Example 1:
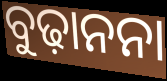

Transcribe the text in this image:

ବୁଢ଼ାନନା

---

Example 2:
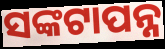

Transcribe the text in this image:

ସଙ୍କଟାପନ୍ନ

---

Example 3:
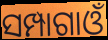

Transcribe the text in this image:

ସମ୍ପାଗାଓଁ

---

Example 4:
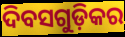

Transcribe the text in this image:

ଦିବସଗୁଡ଼ିକର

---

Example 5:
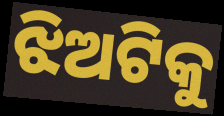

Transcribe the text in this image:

ଝିଅଟିକୁ